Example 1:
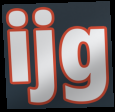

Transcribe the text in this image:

ijg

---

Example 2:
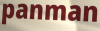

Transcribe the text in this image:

panman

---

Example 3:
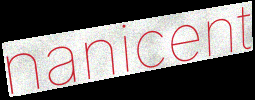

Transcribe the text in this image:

nanicent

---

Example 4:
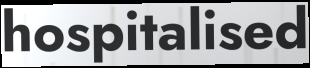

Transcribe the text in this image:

hospitalised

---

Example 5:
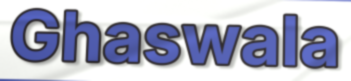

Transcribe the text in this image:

Ghaswala